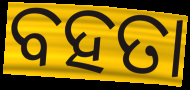
ବହତା